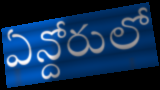
ఏన్దోరులో